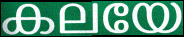
കലയേ